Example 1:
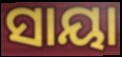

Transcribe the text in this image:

ସାୟା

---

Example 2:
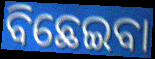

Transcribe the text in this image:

ବିଛେଇବା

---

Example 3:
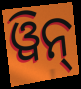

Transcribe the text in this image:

ୱିନ୍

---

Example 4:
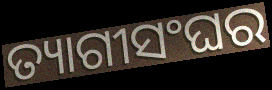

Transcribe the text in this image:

ତ୍ୟାଗୀସଂଘର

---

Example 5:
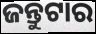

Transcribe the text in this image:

ଜନ୍ତୁଟାର